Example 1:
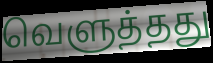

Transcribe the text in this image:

வெளுத்தது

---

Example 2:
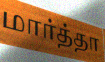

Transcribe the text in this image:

மார்த்தா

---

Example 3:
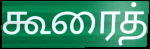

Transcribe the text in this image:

கூரைத்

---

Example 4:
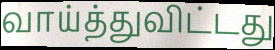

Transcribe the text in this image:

வாய்த்துவிட்டது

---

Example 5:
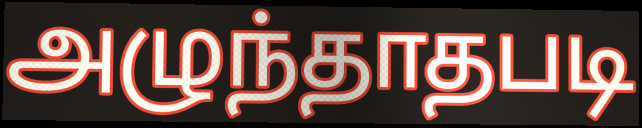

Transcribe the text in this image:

அழுந்தாதபடி